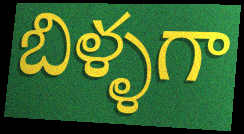
బిళ్ళగా